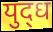
युद्ध